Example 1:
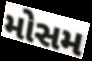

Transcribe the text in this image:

મોસમ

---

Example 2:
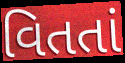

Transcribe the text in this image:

વિતતાં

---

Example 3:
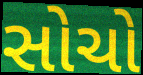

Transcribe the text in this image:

સોચો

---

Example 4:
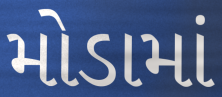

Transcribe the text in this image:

મોડામાં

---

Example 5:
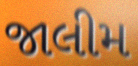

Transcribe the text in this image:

જાલીમ